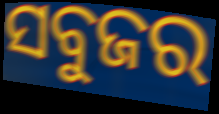
ସବୁଜର